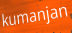
kumanjan